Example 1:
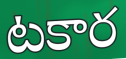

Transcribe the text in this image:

టకార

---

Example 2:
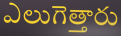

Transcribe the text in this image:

ఎలుగెత్తారు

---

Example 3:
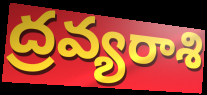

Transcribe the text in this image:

ద్రవ్యరాశి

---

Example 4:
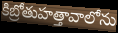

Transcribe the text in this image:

కిబ్రోతుహత్తావాలోను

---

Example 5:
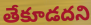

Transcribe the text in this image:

తేకూడదని